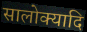
सालोक्यादि